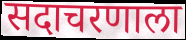
सदाचरणाला